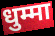
धुम्मा